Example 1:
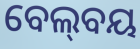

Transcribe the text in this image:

ବେଲ୍‍ବୟ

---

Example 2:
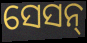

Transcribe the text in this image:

ସେସନ୍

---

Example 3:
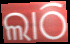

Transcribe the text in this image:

ଲାଠି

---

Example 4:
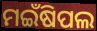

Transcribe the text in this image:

ମଇଁଷିପଲ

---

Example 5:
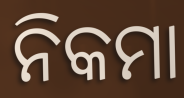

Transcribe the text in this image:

ନିକମା